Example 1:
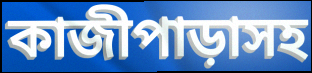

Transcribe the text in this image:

কাজীপাড়াসহ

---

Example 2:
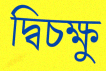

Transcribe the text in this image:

দ্বিচক্ষু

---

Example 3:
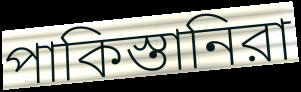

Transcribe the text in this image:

পাকিস্তানিরা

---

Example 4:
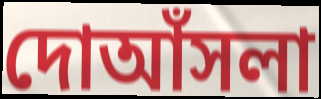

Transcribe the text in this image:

দোআঁসলা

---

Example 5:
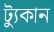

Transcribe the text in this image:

ট্যুকান